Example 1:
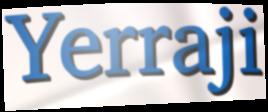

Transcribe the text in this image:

Yerraji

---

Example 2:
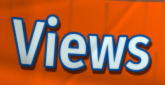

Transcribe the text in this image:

Views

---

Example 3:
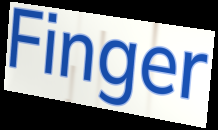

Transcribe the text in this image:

Finger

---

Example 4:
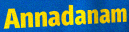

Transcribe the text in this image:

Annadanam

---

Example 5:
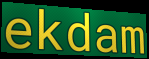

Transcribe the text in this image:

ekdam